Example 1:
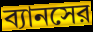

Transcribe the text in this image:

ব্যানসের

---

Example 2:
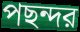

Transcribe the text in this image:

পছন্দর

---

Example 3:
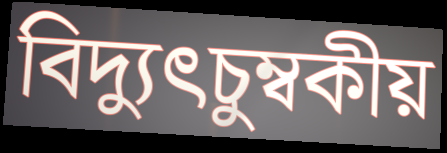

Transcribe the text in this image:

বিদ্যুৎচুম্বকীয়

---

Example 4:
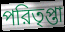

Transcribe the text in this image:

পরিতৃপ্তা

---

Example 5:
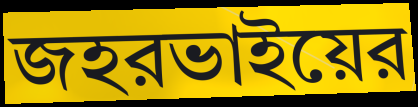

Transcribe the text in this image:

জহরভাইয়ের